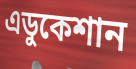
এডুকেশান